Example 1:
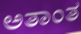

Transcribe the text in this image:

ಅತಾಂತ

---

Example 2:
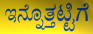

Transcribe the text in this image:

ಇನ್ನೊತ್ತಟ್ಟಿಗೆ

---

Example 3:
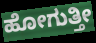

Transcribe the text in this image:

ಹೋಗುತ್ತೀ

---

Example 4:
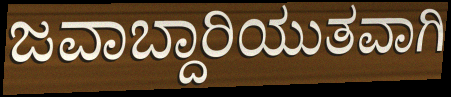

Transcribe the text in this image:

ಜವಾಬ್ದಾರಿಯುತವಾಗಿ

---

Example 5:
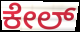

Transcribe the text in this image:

ಕೇಲ್